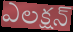
ఎలక్షన్